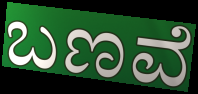
ಬಣವೆ